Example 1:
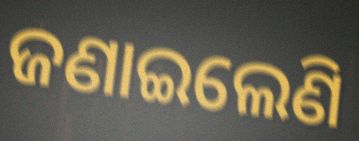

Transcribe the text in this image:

ଜଣାଇଲେଣି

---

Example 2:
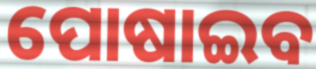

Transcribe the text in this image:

ପୋଷାଇବ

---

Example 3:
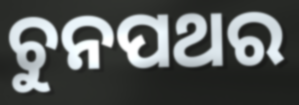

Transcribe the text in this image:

ଚୁନପଥର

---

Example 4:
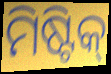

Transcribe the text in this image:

ମିଷ୍ଟିକ୍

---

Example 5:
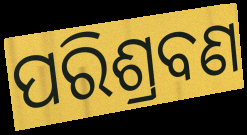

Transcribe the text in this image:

ପରିଶ୍ରବଣ